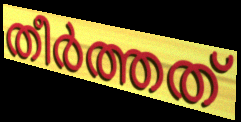
തീർത്തത്